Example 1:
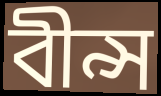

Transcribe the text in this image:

বীন্স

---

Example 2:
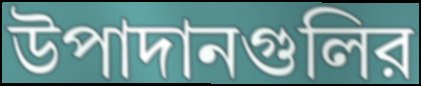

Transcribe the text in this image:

উপাদানগুলির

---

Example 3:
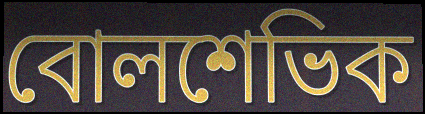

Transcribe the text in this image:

বোলশেভিক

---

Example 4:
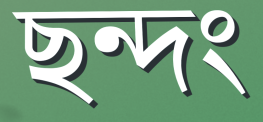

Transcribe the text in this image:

ছন্দং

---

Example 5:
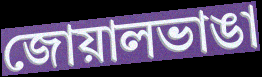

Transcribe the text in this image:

জোয়ালভাঙা